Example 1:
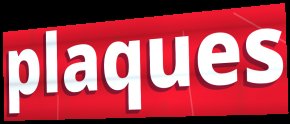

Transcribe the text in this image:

plaques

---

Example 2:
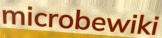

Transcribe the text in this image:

microbewiki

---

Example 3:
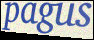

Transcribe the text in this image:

pagus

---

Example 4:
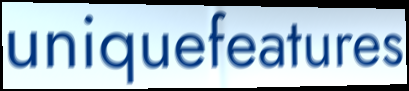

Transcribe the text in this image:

uniquefeatures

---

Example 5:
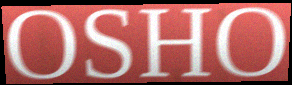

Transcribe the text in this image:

OSHO